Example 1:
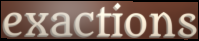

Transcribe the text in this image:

exactions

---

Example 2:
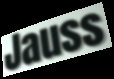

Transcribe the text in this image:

Jauss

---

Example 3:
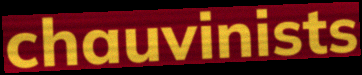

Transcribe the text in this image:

chauvinists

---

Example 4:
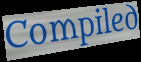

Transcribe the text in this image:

Compiled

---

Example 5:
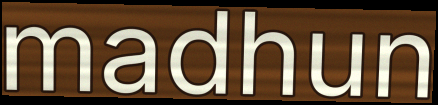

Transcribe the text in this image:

madhun